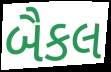
બૈકલ